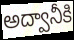
అద్వానీకి